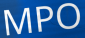
MPO